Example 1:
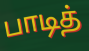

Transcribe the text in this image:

பாடித்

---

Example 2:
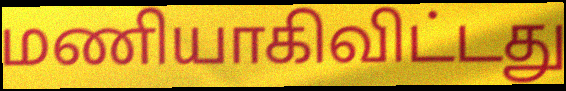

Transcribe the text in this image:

மணியாகிவிட்டது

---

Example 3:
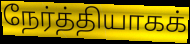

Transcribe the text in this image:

நேர்த்தியாகக்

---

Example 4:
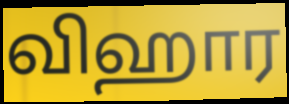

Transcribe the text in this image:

விஹார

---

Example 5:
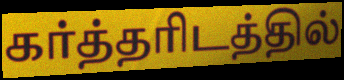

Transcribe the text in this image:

கர்த்தரிடத்தில்